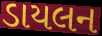
ડાયલન